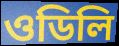
ওডিলি